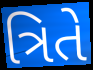
ત્રિતે